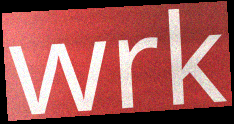
wrk